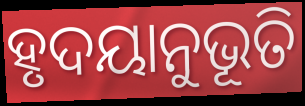
ହୃଦୟାନୁଭୂତି